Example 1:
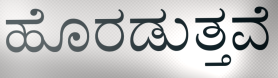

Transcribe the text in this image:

ಹೊರಡುತ್ತವೆ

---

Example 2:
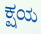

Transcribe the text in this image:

ಕ್ಷಯ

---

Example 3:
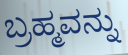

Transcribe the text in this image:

ಬ್ರಹ್ಮವನ್ನು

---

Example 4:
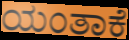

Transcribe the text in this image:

ಯಂತಾಕೆ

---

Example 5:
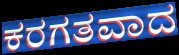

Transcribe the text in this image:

ಕರಗತವಾದ